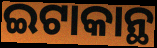
ଇଟାକାନ୍ଥ